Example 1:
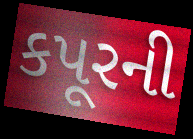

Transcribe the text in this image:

કપૂરની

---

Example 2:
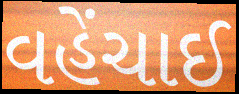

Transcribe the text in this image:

વહેંચાઈ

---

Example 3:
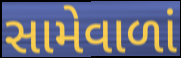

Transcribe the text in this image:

સામેવાળાં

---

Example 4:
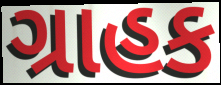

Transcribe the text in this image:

ગ્રાહક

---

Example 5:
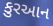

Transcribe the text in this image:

કુરઆન